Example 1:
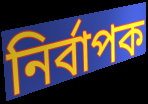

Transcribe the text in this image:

নির্বাপক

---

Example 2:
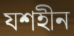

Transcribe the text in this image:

যশহীন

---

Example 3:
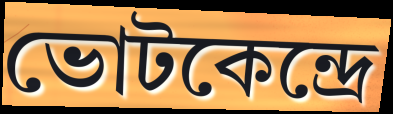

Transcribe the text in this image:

ভোটকেন্দ্রে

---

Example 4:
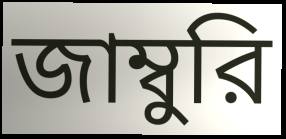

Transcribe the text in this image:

জাম্বুরি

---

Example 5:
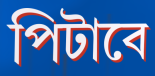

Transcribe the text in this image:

পিটাবে